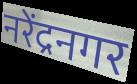
नरेंद्रनगर